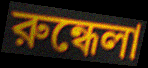
রুন্ধেলা